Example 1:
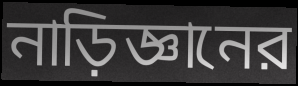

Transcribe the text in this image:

নাড়িজ্ঞানের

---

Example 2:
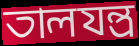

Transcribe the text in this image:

তালযন্ত্র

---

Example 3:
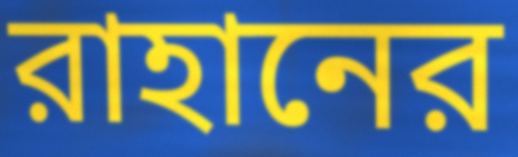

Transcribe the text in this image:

রাহানের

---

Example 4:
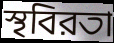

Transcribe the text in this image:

স্থবিরতা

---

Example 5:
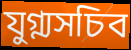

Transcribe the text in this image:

যুগ্মসচিব